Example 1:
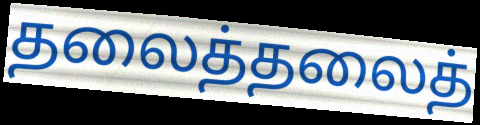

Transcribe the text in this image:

தலைத்தலைத்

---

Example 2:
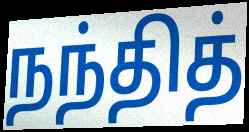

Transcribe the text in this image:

நந்தித்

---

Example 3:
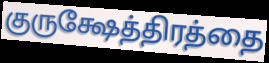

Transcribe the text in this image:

குருக்ஷேத்திரத்தை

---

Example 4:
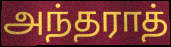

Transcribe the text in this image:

அந்தராத்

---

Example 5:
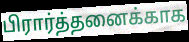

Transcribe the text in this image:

பிரார்த்தனைக்காக